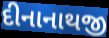
દીનાનાથજી